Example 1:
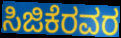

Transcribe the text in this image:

ಸಿಜಿಕೆರವರ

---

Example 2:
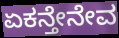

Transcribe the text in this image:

ಏಕನ್ತೇನೇವ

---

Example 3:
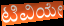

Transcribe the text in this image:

ಟಿವಿಯೇ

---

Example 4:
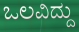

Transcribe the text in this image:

ಒಲವಿದ್ದು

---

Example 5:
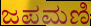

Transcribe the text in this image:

ಜಪಮಣಿ